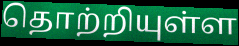
தொற்றியுள்ள